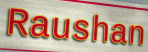
Raushan